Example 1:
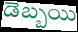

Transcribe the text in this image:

డెబ్బయి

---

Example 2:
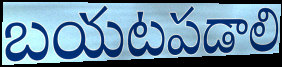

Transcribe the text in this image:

బయటపడాలి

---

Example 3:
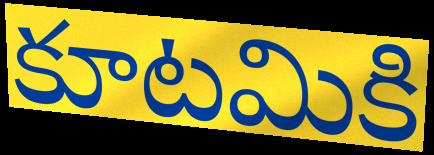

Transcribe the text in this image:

కూటమికి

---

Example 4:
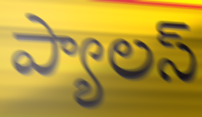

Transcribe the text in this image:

ప్యాలస్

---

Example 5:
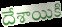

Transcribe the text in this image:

దేశాయికి